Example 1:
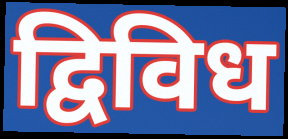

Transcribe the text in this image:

द्विविध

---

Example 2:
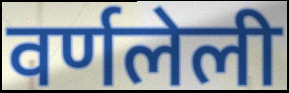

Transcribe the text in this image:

वर्णलेली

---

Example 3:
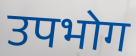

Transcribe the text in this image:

उपभोग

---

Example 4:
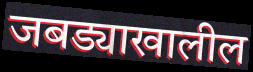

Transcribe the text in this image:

जबड्याखालील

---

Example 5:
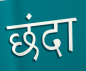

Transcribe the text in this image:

छंदा